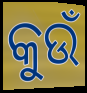
କୁଉଁ